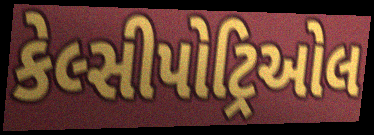
કેલ્સીપોટ્રિઓલ